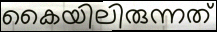
കൈയിലിരുന്നത്